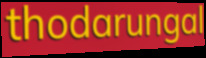
thodarungal